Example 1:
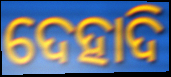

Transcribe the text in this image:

ଦେହାଦି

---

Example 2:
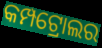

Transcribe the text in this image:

କମ୍ପଟ୍ରୋଲର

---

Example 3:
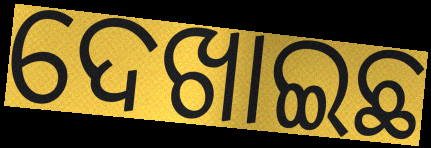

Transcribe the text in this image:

ଦେଖାଇଛ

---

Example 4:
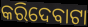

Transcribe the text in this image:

କରିଦେବାଟା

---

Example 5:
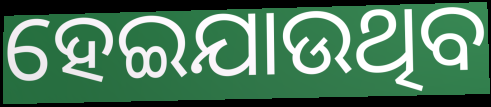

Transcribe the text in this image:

ହେଇଯାଉଥିବ